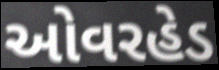
ઓવરહેડ